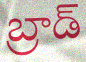
బ్రాడ్